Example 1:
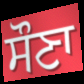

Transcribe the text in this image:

ਸੌਣਾ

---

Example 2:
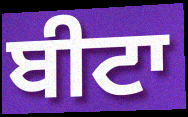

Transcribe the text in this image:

ਬੀਟਾ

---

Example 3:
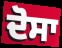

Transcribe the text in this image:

ਦੋਸਾ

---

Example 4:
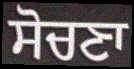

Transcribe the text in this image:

ਸੋਚਣਾ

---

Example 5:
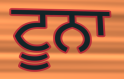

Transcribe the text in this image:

ਟੂਨਾ